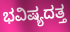
ಭವಿಷ್ಯದತ್ತ